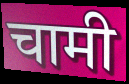
चामी